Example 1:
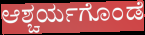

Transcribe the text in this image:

ಆಶ್ಚರ್ಯಗೊಂಡೆ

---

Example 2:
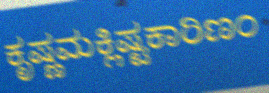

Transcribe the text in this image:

ಕೃಷ್ಣಮಕ್ಲಿಷ್ಟಕಾರಿಣಂ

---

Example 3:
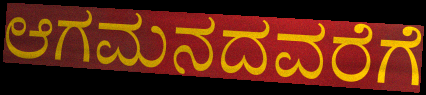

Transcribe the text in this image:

ಆಗಮನದವರೆಗೆ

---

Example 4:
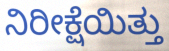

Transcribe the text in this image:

ನಿರೀಕ್ಷೆಯಿತ್ತು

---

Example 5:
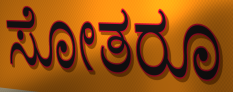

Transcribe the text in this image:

ಸೋತರೂ